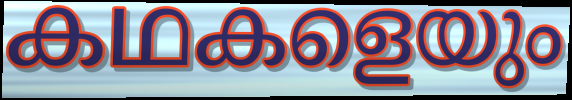
കഥകളെയും